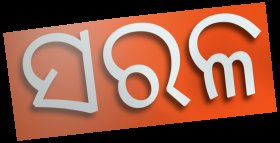
ସରଳ